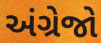
અંગ્રેજો